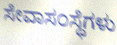
ಸೇವಾಸಂಸ್ಥೆಗಳು